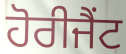
ਹੋਰੀਜੈਂਟ